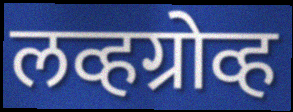
लव्हग्रोव्ह